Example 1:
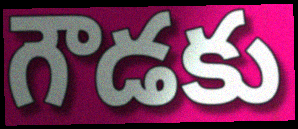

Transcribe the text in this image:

గౌడకు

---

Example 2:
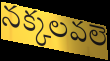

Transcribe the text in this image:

నక్కలవలె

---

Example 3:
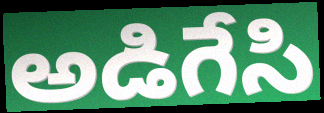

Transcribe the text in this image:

అడిగేసి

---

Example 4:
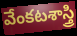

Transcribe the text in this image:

వేంకటశాస్త్రి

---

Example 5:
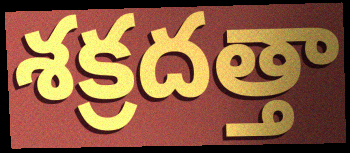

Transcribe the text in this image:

శక్రదత్తా